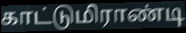
காட்டுமிராண்டி